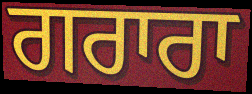
ਗਰਾਰਾ